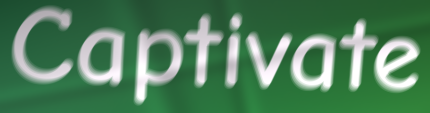
Captivate